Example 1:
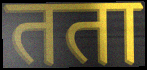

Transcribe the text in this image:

तता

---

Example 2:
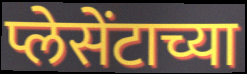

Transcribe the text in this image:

प्लेसेंटाच्या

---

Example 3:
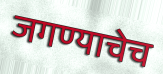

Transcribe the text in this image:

जगण्याचेच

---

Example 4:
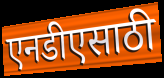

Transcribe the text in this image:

एनडीएसाठी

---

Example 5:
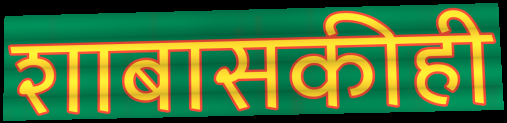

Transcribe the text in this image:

शाबासकीही